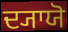
ਦ੍ਯਾਯੋ